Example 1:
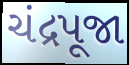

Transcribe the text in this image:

ચંદ્રપૂજા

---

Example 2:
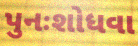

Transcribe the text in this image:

પુનઃશોધવા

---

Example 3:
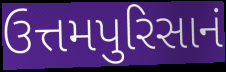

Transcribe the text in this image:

ઉત્તમપુરિસાનં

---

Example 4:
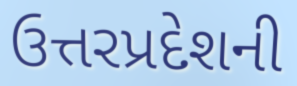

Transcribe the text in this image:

ઉત્તરપ્રદેશની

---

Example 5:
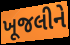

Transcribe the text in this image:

ખૂજલીને